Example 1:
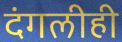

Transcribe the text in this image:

दंगलीही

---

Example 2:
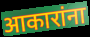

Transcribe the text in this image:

आकारांना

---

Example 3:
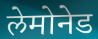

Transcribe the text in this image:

लेमोनेड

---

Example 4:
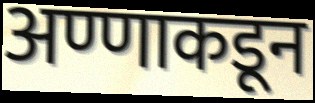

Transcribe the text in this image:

अण्णाकडून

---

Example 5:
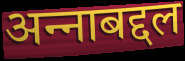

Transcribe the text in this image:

अन्‍नाबद्दल